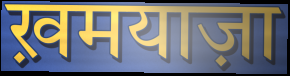
ख़मयाज़ा